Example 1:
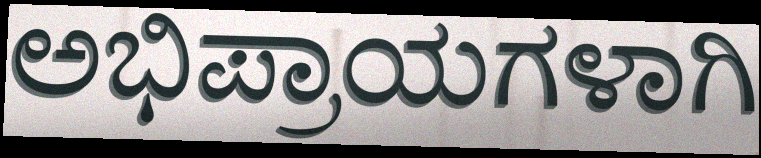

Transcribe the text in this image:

ಅಭಿಪ್ರಾಯಗಳಾಗಿ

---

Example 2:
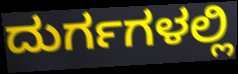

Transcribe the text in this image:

ದುರ್ಗಗಳಲ್ಲಿ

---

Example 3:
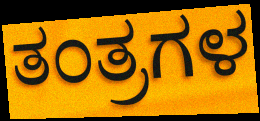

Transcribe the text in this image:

ತಂತ್ರಗಳ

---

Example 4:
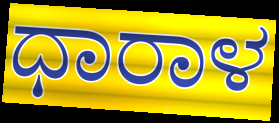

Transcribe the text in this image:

ಧಾರಾಳ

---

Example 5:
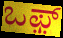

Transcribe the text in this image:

ಒಫ಼್